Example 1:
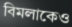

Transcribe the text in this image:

বিমলাকেও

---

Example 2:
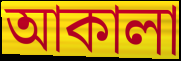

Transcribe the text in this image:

আকালা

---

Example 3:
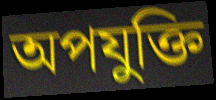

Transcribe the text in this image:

অপযুক্তি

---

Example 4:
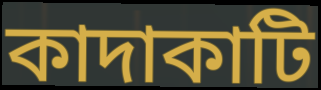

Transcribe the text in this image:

কাদাকাটি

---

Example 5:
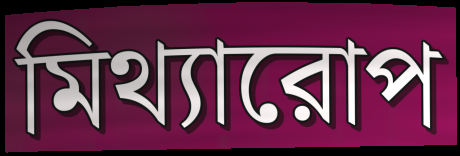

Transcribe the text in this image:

মিথ্যারোপ